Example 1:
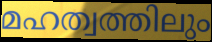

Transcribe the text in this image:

മഹത്വത്തിലും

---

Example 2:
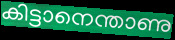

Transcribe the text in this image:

കിട്ടാനെന്താണു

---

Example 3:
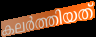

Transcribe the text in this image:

കലർത്തിയത്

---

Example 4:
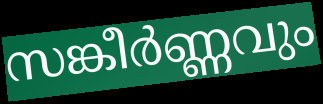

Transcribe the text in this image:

സങ്കീർണ്ണവും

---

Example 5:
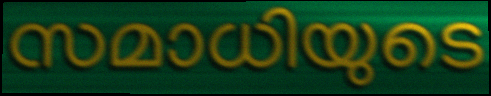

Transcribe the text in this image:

സമാധിയുടെ